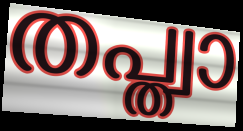
തപ്ത്വാ